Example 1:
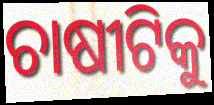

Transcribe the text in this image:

ଚାଷୀଟିକୁ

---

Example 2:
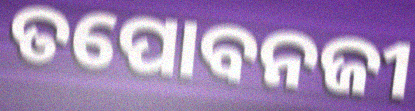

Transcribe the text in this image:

ତପୋବନଜୀ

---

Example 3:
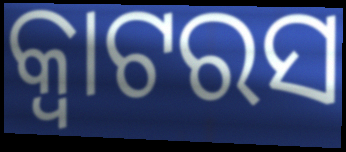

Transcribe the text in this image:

କ୍ୱାଟରସ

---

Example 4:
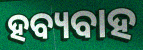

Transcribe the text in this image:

ହବ୍ୟବାହ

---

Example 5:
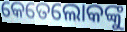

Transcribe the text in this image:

କେତେଲୋକଙ୍କୁ